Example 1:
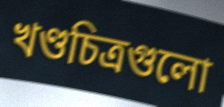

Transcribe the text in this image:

খণ্ডচিত্রগুলো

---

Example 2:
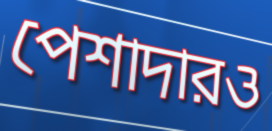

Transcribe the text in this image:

পেশাদারও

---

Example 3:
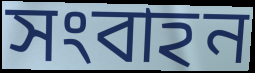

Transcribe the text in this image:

সংবাহন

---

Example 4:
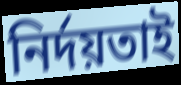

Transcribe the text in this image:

নির্দয়তাই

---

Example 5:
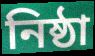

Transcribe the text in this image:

নিষ্ঠা